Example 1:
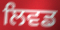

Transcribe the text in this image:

ਲਿਵਡ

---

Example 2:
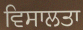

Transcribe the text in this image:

ਵਿਸਾਲਤਾ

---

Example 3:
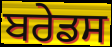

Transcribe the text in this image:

ਬਰੇਡਸ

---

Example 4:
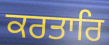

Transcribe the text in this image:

ਕਰਤਾਰਿ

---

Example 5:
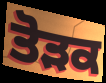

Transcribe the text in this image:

ਤੋੜਕ